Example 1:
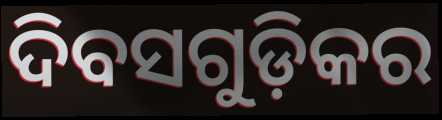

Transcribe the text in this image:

ଦିବସଗୁଡ଼ିକର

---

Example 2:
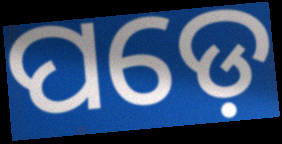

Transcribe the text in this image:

ପଡ଼େ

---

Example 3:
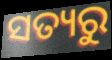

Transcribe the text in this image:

ସତ୍ୟରୁ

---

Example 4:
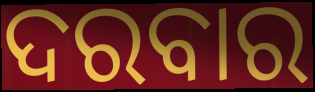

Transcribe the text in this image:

ଦରବାର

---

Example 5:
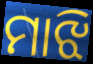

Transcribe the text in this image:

ମାଝି